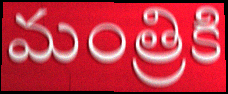
మంత్రికి